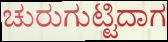
ಚುರುಗುಟ್ಟಿದಾಗ